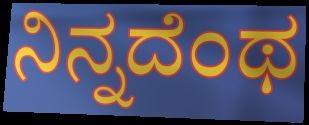
ನಿನ್ನದೆಂಥ